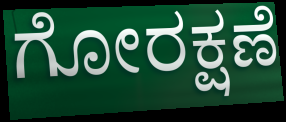
ಗೋರಕ್ಷಣೆ